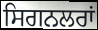
ਸਿਗਨਲਰਾਂ